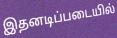
இதனடிப்படையில்